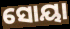
ସୋୟା